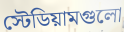
স্টেডিয়ামগুলো